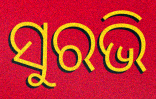
ସୁରଭି